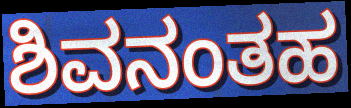
ಶಿವನಂತಹ